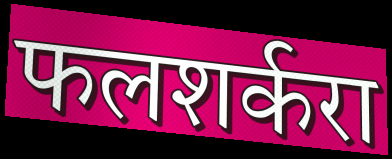
फलशर्करा